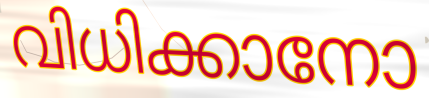
വിധിക്കാനോ